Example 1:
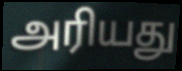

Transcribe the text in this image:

அரியது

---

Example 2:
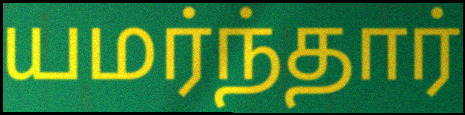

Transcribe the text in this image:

யமர்ந்தார்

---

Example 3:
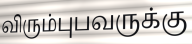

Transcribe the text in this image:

விரும்புபவருக்கு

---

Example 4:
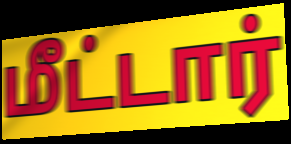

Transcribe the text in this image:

மீட்டார்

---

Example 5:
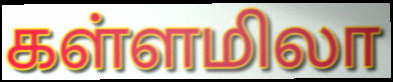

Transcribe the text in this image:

கள்ளமிலா